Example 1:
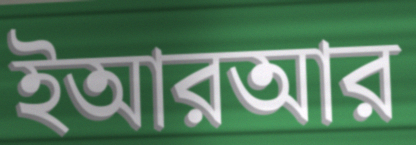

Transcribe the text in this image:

ইআরআর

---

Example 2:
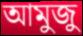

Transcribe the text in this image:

আমুজু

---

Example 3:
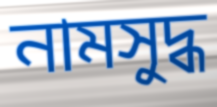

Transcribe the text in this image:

নামসুদ্ধ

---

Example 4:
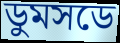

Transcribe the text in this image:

ডুমসডে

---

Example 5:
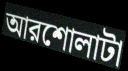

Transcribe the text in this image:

আরশোলাটা